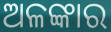
ଅଳଙ୍କାର